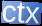
ctx